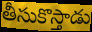
తీసుకొస్తాడు